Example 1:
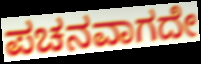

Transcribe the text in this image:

ಪಚನವಾಗದೇ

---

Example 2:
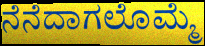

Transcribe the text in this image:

ನೆನೆದಾಗಲೊಮ್ಮೆ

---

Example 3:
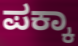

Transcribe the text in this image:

ಪಕ್ಕಾ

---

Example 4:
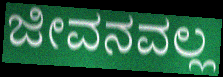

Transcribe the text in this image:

ಜೀವನವಲ್ಲ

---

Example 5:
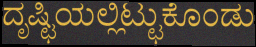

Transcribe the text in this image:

ದೃಷ್ಟಿಯಲ್ಲಿಟ್ಟುಕೊಂಡು